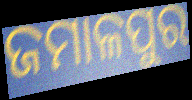
ଜମାଳପୁର